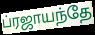
ப்ரஜாயந்தே